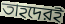
তাহদেরই